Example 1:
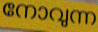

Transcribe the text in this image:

നോവുന്ന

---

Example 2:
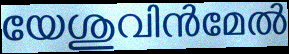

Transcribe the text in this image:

യേശുവിൻമേൽ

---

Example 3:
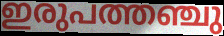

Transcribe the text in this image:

ഇരുപത്തഞ്ചു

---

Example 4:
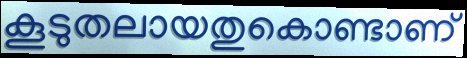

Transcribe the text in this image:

കൂടുതലായതുകൊണ്ടാണ്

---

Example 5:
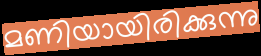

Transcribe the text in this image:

മണിയായിരിക്കുന്നു